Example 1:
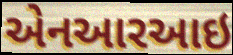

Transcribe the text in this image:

એનઆરઆઇ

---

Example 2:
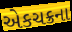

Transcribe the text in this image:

એકચક્રના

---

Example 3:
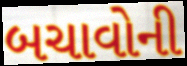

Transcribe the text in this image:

બચાવોની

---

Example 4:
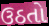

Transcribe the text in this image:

ઉઠતો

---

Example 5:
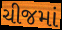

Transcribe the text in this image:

ચીજમાં